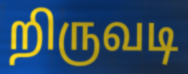
றிருவடி